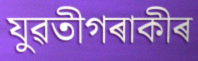
যুৱতীগৰাকীৰ